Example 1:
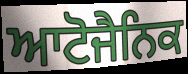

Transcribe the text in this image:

ਆਟੋਜੈਨਿਕ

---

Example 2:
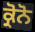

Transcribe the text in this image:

ਕ੍ਰੋਨੋ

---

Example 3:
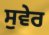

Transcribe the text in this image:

ਸੁਵੇਰ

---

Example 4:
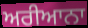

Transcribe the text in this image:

ਅਰੀਆਨਾ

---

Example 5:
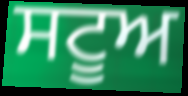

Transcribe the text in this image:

ਸਟੂਅ